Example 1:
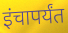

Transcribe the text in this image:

इंचापर्यंत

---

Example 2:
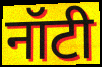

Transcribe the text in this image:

नॉटी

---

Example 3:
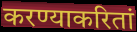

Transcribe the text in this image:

करण्याकरितां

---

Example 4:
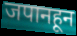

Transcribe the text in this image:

जपानहून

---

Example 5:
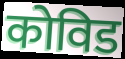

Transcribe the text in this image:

कोविड